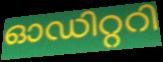
ഓഡിറ്ററി